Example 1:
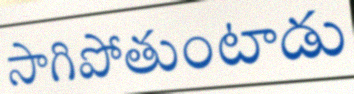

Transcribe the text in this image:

సాగిపోతుంటాడు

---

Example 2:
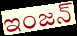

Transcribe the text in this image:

ఇంజన్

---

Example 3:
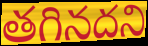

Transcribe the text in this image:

తగినదని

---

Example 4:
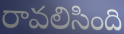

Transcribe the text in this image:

రావలిసింది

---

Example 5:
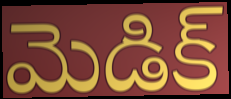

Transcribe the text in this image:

మెడిక్